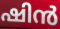
ഷിൻ